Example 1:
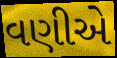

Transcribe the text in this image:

વણીએ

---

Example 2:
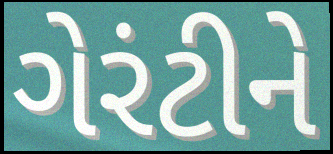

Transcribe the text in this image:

ગેરંટીને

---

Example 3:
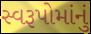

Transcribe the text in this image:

સ્વરૂપોમાંનું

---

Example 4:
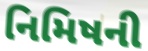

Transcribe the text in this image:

નિમિષની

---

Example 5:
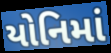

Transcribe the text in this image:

યોનિમાં